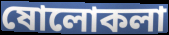
ষোলোকলা